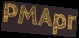
PMApr